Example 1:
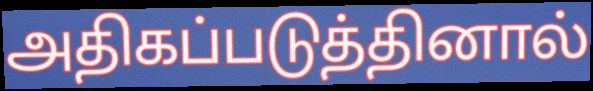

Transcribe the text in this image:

அதிகப்படுத்தினால்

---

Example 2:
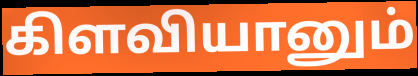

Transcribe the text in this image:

கிளவியானும்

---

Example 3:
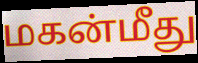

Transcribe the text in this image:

மகன்மீது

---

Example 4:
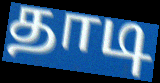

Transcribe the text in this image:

தாடி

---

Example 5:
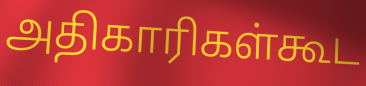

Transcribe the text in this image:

அதிகாரிகள்கூட